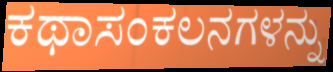
ಕಥಾಸಂಕಲನಗಳನ್ನು